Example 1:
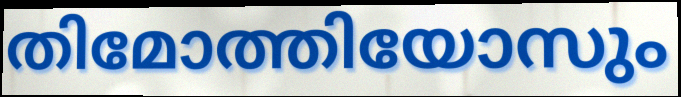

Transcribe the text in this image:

തിമോത്തിയോസും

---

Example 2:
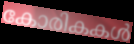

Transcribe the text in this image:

കോരികകൾ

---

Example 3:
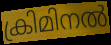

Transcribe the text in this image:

ക്രിമിനൽ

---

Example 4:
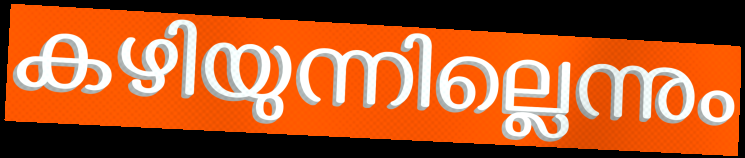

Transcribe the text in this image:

കഴിയുന്നില്ലെന്നും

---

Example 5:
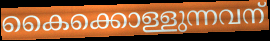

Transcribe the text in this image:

കൈക്കൊള്ളുന്നവന്